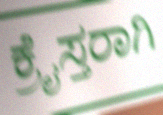
ಕ್ರೈಸ್ತರಾಗಿ